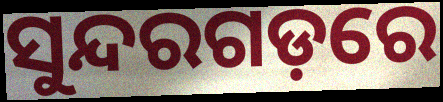
ସୁନ୍ଦରଗଡ଼ରେ